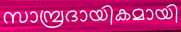
സാമ്പ്രദായികമായി